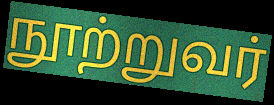
நூற்றுவர்